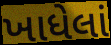
ખાધેલાં